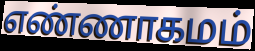
எண்ணாகமம்